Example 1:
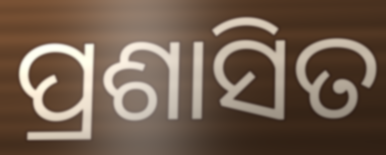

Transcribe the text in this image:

ପ୍ରଶାସିତ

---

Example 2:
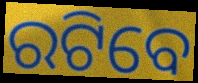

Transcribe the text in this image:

ରଟିବେ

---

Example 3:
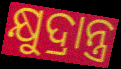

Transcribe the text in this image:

କ୍ଷୁଦ୍ରାନ୍ତ୍ର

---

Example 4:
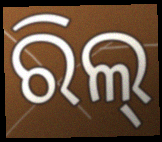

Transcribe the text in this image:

ରିଲ୍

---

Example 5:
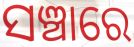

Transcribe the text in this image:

ସଞ୍ଚାରେ